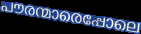
പൗരന്മാരെപ്പോലെ